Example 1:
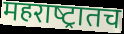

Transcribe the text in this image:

महराष्ट्रातच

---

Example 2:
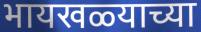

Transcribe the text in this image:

भायखळ्याच्या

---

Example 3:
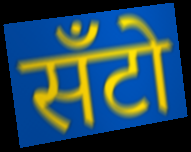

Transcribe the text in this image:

सँटो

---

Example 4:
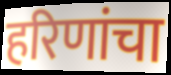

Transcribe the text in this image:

हरिणांचा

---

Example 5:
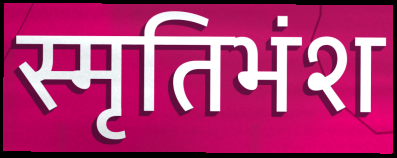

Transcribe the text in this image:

स्मृतिभंश